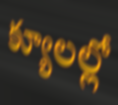
క్యూలల్లో